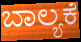
ಬಾಲ್ಯಕೆ